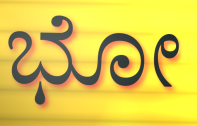
ಭೋ